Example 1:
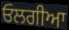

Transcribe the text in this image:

ਓਲਗੀਆ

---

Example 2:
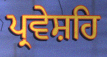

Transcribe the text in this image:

ਪ੍ਰਵੇਸ਼ਹਿ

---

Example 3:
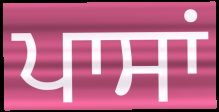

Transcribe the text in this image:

ਪਾਸਾਂ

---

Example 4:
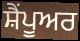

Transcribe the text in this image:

ਸ਼ੈਂਪੂਅਰ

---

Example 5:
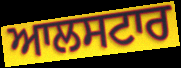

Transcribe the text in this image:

ਆਲਸਟਾਰ